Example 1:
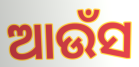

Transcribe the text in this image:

ଆଉଁସ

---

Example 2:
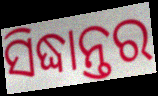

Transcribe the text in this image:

ସିଦ୍ଧାନ୍ତର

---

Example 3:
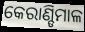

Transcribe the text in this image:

କେରାଣ୍ଡିମାଳ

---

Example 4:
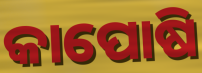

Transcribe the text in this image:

କାପୋଷି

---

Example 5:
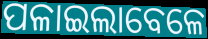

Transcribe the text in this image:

ପଳାଇଲାବେଳେ